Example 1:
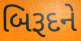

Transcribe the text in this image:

બિરૂદને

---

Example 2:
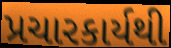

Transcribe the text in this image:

પ્રચારકાર્યથી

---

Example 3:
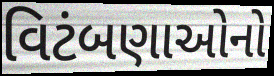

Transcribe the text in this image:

વિટંબણાઓનો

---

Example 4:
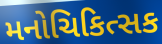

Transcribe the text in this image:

મનોચિકિત્સક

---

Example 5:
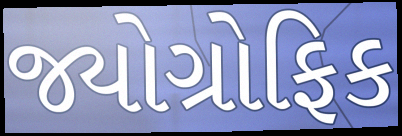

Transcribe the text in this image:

જ્યોગ્રોફિક